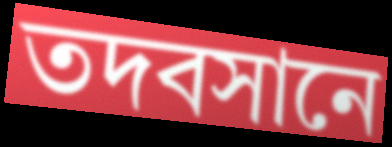
তদবসানে